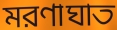
মরণাঘাত